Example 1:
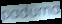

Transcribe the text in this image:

paduma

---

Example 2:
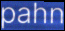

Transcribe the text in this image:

pahn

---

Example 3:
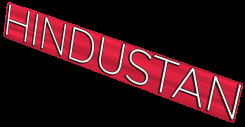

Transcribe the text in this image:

HINDUSTAN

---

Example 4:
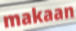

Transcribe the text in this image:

makaan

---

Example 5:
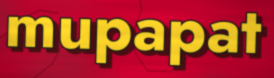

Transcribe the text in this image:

mupapat